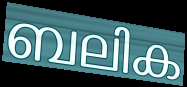
ബലിക